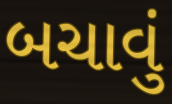
બચાવું